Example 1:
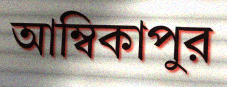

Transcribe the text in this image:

আম্বিকাপুর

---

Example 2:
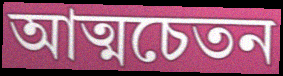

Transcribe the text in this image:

আত্মচেতন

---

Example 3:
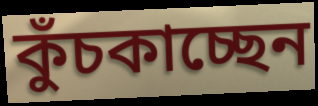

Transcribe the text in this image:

কুঁচকাচ্ছেন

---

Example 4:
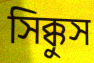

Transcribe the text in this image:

সিক্কুস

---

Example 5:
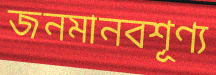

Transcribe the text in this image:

জনমানবশূণ্য